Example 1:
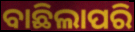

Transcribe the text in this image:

ବାଛିଲାପରି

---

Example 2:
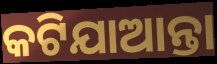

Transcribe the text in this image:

କଟିଯାଆନ୍ତା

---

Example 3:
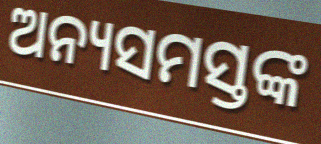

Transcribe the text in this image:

ଅନ୍ୟସମସ୍ତଙ୍କ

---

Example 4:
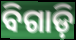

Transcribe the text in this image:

ବିଗାଡ଼ି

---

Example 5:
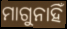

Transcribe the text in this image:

ମାଗୁନାହିଁ